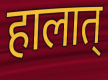
हालात्